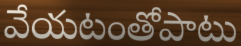
వేయటంతోపాటు